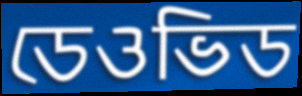
ডেওভিড